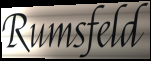
Rumsfeld